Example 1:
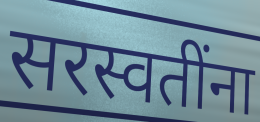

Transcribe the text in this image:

सरस्वतींना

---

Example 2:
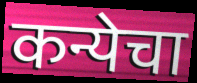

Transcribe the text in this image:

कन्येचा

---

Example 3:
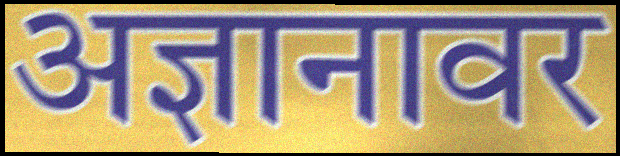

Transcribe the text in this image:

अज्ञानावर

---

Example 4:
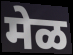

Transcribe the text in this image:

मेळ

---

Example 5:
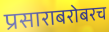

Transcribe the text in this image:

प्रसाराबरोबरच